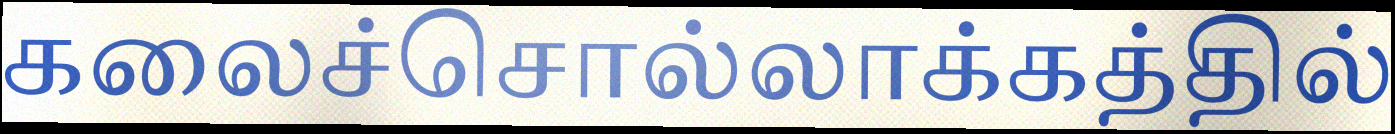
கலைச்சொல்லாக்கத்தில்